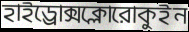
হাইড্রোক্সক্লোরোকুইন